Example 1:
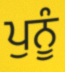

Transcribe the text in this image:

ਪੁਨੂੰ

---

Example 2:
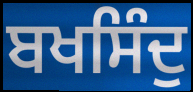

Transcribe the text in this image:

ਬਖਸਿੰਦੁ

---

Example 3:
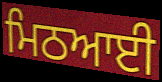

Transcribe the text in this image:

ਮਿਠਆਈ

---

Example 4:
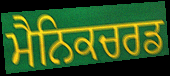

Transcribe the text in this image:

ਮੈਨਿਕਚਰਡ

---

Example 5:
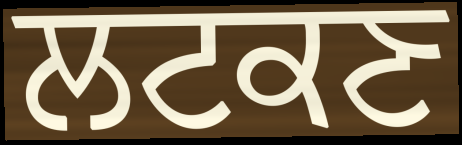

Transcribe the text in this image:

ਲਟਕਣ